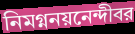
নিমগ্ননয়নেন্দীবর